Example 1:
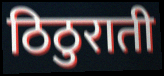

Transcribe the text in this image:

ठिठुराती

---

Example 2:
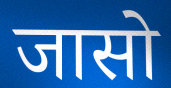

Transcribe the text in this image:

जासो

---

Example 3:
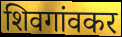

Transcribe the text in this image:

शिवगांवकर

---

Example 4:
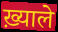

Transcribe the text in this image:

ख़्याले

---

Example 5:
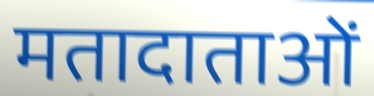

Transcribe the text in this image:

मतादाताओं